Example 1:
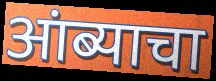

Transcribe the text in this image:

आंब्याचा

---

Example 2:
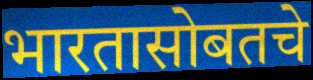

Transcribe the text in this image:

भारतासोबतचे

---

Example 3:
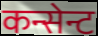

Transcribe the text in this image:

कन्सेन्ट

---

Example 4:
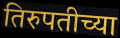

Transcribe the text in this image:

तिरुपतीच्या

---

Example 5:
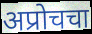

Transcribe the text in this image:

अप्रोचचा